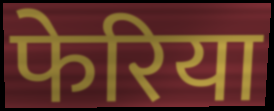
फेरिया